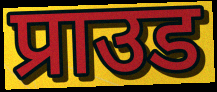
प्राउड